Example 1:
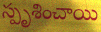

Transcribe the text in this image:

స్పృశించాయి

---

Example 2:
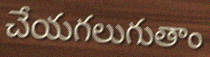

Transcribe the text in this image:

చేయగలుగుతాం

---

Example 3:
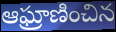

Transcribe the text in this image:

ఆఘ్రాణించిన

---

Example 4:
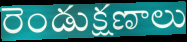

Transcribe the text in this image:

రెండుక్షణాలు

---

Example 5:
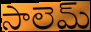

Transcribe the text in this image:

సాలెమ్